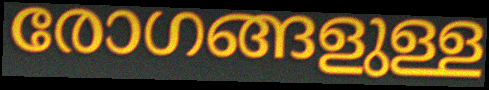
രോഗങ്ങളുള്ള